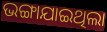
ଭଙ୍ଗାଯାଇଥିଲା